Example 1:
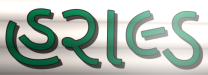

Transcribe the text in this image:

હરાલ્ડ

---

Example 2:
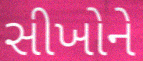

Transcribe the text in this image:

સીખોને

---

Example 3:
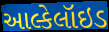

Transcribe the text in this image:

આલ્કેલૉઇડ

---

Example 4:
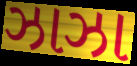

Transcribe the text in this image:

ઝાઝા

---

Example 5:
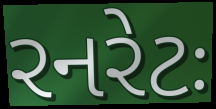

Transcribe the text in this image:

રનરેટઃ